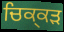
ਚਿਕ੍ਕੜ